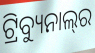
ଟ୍ରିବ୍ୟୁନାଲ୍‍ର